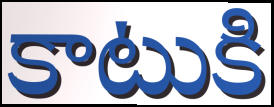
కాటుకి